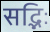
सद्भिः